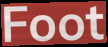
Foot